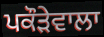
ਪਕੌੜੇਵਾਲਾ